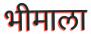
भीमाला